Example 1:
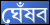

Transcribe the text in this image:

ঘেঁষব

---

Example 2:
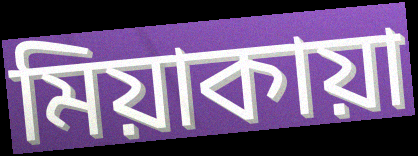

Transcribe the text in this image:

মিয়াকায়া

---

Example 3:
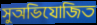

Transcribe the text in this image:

সুঅভিযোজিত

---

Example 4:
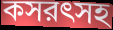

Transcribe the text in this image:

কসরৎসহ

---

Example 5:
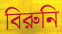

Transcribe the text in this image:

বিরুনি